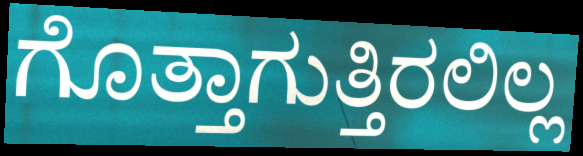
ಗೊತ್ತಾಗುತ್ತಿರಲಿಲ್ಲ